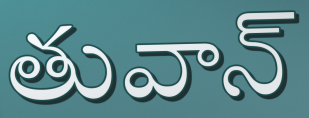
తువాన్